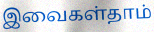
இவைகள்தாம்